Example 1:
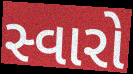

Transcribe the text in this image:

સ્વારો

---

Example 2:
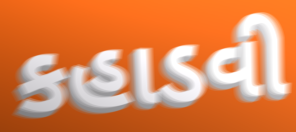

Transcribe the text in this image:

કહાડવી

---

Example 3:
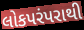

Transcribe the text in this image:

લોકપરંપરાથી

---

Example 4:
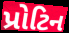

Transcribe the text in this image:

પ્રોટિન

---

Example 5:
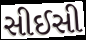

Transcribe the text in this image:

સીઈસી